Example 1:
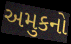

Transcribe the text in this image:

અમુકનો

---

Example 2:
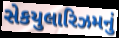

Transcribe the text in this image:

સેકયુલારિઝમનું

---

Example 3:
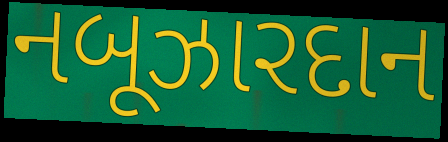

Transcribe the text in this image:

નબૂઝારદાન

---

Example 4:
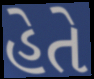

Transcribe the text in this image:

હેતે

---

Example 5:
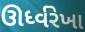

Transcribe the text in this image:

ઊર્ધ્વરેખા